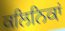
ਕਲਿਨਿਕਾਂ